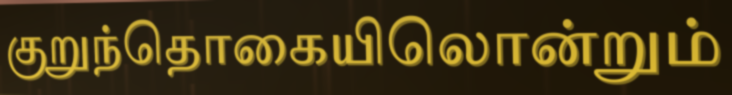
குறுந்தொகையிலொன்றும்